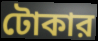
টোকার